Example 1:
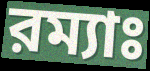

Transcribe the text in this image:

রম্যাঃ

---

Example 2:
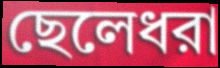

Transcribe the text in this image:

ছেলেধরা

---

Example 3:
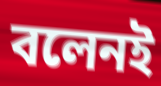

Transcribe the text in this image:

বলেনই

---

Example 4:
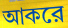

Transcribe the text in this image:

আকরে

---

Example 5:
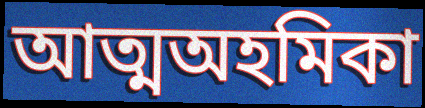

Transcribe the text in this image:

আত্মঅহমিকা